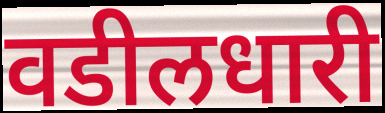
वडीलधारी